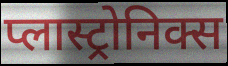
प्लास्ट्रोनिक्स